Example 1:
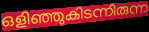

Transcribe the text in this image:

ഒളിഞ്ഞുകിടന്നിരുന്ന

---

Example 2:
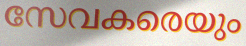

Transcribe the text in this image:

സേവകരെയും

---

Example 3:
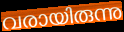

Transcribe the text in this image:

വരായിരുന്നു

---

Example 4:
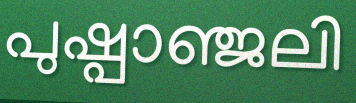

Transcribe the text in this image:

പുഷ്പാഞ്ജലി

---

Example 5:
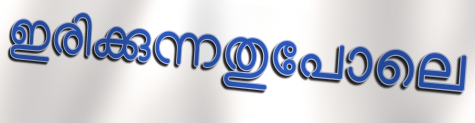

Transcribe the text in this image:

ഇരിക്കുന്നതുപോലെ